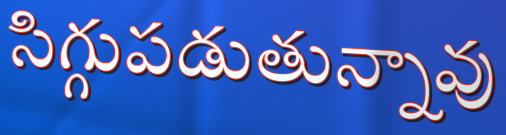
సిగ్గుపడుతున్నావు